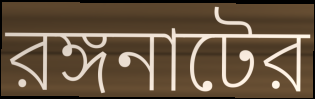
রঙ্গনাটের